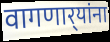
वागणार्‍यांना